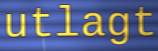
utlagt